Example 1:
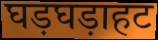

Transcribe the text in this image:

घड़घड़ाहट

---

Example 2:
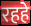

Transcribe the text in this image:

रहहे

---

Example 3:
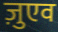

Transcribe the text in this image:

ज़ुएव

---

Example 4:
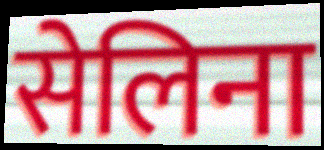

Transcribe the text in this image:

सेलिना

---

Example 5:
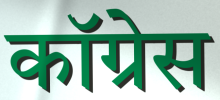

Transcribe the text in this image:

कॉग्रेस